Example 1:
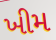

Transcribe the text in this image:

ખીમ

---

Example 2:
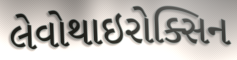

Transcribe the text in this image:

લેવોથાઇરોક્સિન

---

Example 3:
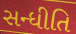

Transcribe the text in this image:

સન્ધીતિ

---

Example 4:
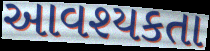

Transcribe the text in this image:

આવશ્યકતા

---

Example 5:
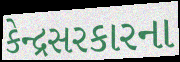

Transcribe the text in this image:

કેન્દ્રસરકારના